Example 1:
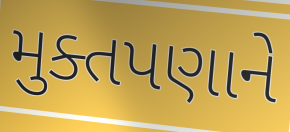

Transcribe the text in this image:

મુક્તપણાને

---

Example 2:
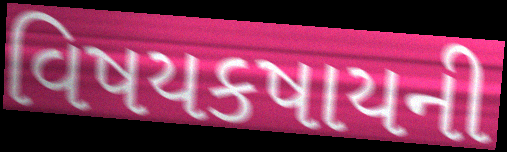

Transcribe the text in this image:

વિષયકષાયની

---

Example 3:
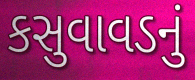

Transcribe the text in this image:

કસુવાવડનું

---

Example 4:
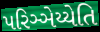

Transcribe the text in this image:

પરિઞ્ઞેય્યેતિ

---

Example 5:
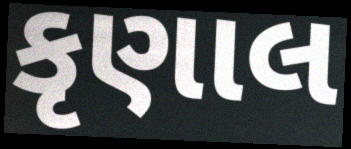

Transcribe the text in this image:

કૃણાલ